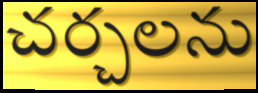
చర్చలను